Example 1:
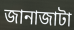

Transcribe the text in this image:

জানাজাটা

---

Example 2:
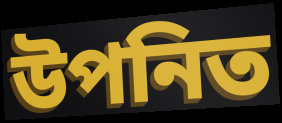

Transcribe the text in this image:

উপনিত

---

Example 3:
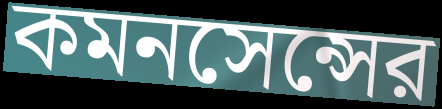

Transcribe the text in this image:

কমনসেন্সের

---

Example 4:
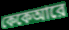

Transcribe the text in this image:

কেকেআরে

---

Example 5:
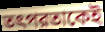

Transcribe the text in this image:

তৎপরতাকেই